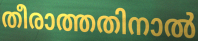
തീരാത്തതിനാൽ